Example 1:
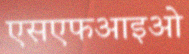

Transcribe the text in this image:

एसएफआइओ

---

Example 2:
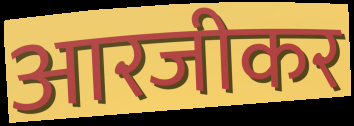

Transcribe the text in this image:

आरजीकर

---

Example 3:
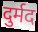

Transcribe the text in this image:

दुर्मद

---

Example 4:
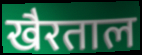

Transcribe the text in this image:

खैरताल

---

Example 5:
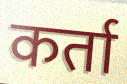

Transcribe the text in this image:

कर्ता